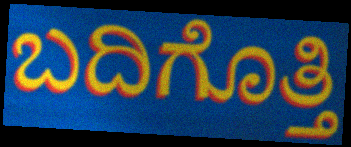
ಬದಿಗೊತ್ತಿ